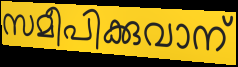
സമീപിക്കുവാന്